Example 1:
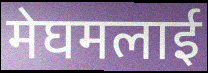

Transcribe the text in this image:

मेघमलाई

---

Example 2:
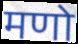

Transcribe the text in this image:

मणो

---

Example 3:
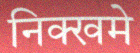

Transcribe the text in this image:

निक्खमे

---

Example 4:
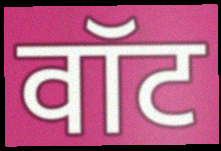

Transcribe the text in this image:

वॉट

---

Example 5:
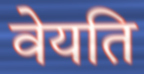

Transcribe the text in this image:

वेयति